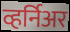
व्हर्निअर